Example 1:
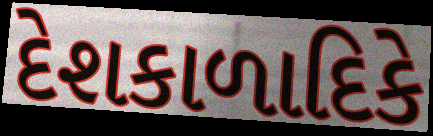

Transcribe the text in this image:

દેશકાળાદિકે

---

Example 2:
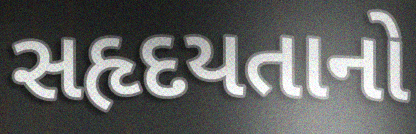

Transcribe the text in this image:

સહૃદયતાનો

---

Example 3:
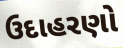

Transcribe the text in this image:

ઉદાહરણો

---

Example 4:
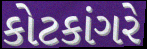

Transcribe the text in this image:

કોટકાંગરે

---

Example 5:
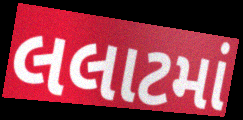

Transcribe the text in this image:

લલાટમાં